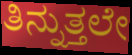
ತಿನ್ನುತ್ತಲೇ